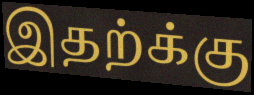
இதற்க்கு